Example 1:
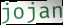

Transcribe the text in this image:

jojan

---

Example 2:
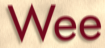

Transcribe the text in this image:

Wee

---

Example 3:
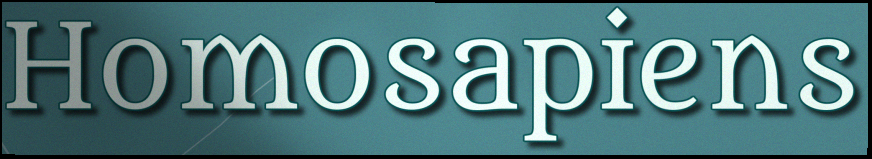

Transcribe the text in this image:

Homosapiens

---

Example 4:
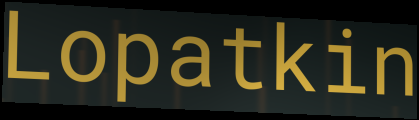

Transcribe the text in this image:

Lopatkin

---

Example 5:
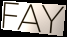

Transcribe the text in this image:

FAY